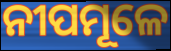
ନୀପମୂଳେ